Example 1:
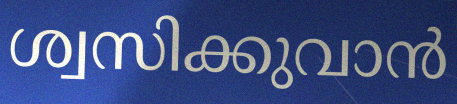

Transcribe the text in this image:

ശ്വസിക്കുവാൻ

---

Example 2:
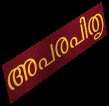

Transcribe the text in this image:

അപരപിതൃ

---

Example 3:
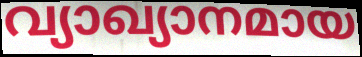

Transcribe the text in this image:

വ്യാഖ്യാനമായ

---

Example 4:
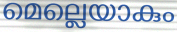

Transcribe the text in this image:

മെല്ലെയാകും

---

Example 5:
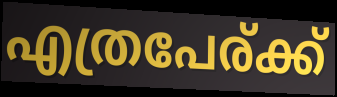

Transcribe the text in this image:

എത്രപേര്ക്ക്